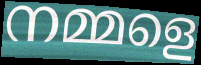
നമ്മളെ